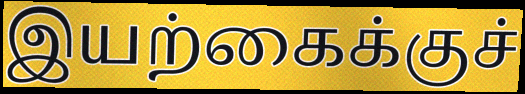
இயற்கைக்குச்